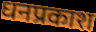
धनप्रकाश